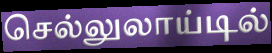
செல்லுலாய்டில்